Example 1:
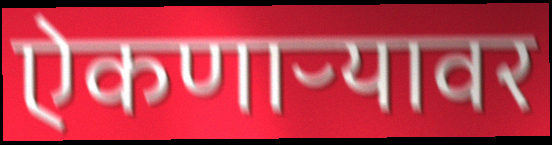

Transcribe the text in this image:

ऐकणाऱ्यावर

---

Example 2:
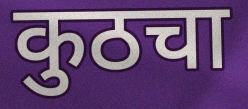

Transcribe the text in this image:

कुठचा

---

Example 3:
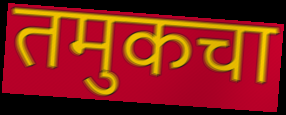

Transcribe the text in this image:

तमुकचा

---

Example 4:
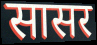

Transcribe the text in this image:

सासर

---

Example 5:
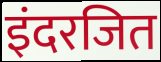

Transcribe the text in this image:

इंदरजित